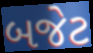
બજેટ